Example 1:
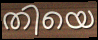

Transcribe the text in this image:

തിയെ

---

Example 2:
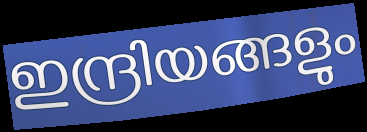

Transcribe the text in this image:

ഇന്ദ്രിയങ്ങളും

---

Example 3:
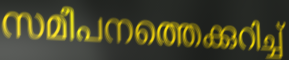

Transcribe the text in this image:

സമീപനത്തെക്കുറിച്ച്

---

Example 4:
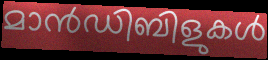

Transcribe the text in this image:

മാൻഡിബിളുകൾ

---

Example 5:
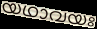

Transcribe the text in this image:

യഥാവയഃ